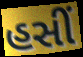
હસીં